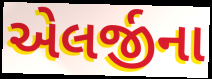
એલર્જીના